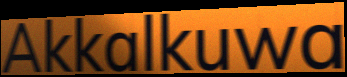
Akkalkuwa